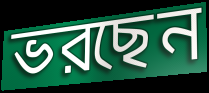
ভরছেন